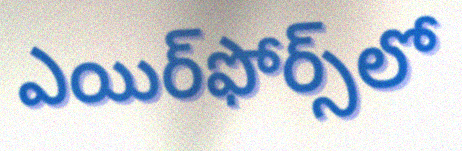
ఎయిర్‌ఫోర్స్‌లో